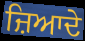
ਜ਼ਿਆਦੇ